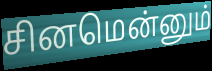
சினமென்னும்